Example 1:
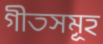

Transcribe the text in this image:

গীতসমূহ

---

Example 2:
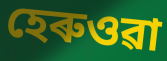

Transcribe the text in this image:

হেৰুওৱা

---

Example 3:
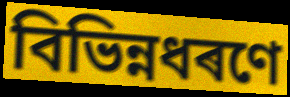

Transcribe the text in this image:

বিভিন্নধৰণে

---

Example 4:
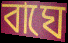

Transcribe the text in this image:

বাঘে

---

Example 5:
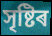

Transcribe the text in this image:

সৃষ্টিৰ